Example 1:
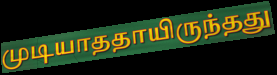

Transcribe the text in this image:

முடியாததாயிருந்தது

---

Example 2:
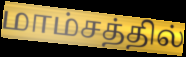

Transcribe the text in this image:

மாம்சத்தில்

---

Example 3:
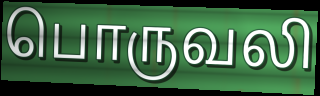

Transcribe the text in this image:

பொருவலி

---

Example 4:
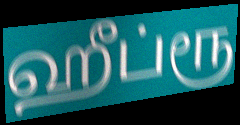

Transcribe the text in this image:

ஹீப்ரூ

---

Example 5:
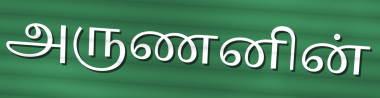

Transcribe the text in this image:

அருணனின்